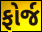
ફોર્જ